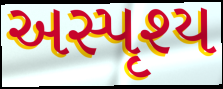
અસ્પૃશ્ય